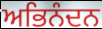
ਅਭਿਨੰਦਨ